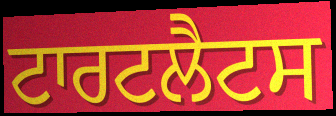
ਟਾਰਟਲੈਟਸ